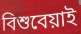
বিশুবেয়াই